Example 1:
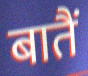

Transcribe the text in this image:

बातैं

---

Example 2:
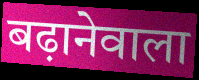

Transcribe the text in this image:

बढ़ानेवाला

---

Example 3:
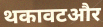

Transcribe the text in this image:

थकावटऔर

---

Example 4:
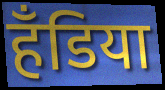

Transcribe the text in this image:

हँडिया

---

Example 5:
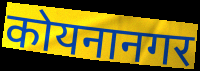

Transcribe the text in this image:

कोयनानगर